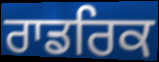
ਰਾਡਰਿਕ